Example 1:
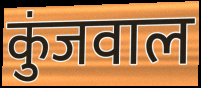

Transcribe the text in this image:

कुंजवाल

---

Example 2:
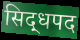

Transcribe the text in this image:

सिद्धपद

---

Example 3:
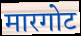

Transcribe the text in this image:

मारगोट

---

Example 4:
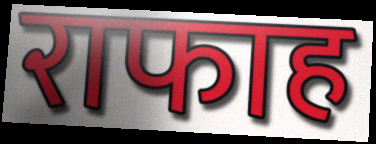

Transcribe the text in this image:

राफाह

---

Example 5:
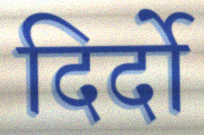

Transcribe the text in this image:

दिर्दो